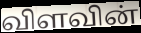
விளவின்